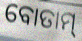
ବୋତାମ୍